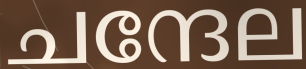
ചന്ദേല